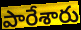
పారేశారు